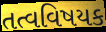
તત્વવિષયક